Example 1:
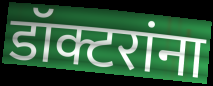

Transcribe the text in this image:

डॉक्टरांना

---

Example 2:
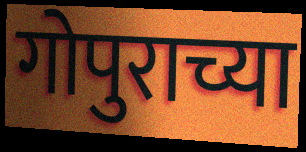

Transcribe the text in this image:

गोपुराच्या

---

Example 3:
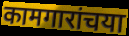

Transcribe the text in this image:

कामगारांचया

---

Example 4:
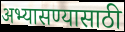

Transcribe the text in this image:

अभ्यासण्यासाठी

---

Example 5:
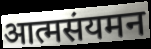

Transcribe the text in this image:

आत्मसंयमन